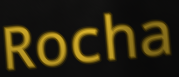
Rocha